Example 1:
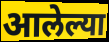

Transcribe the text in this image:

आलेल्या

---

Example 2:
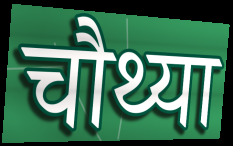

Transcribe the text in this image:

चौथ्या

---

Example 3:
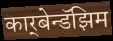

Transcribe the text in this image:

कार्बेन्डॅझिम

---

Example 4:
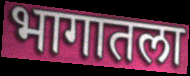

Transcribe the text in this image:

भागातला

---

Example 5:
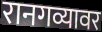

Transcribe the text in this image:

रानगव्यावर